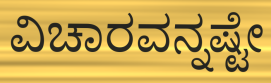
ವಿಚಾರವನ್ನಷ್ಟೇ